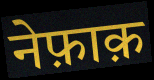
नेफ़ाक़